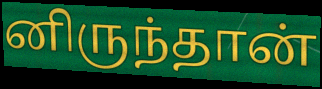
னிருந்தான்